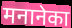
मनानेका